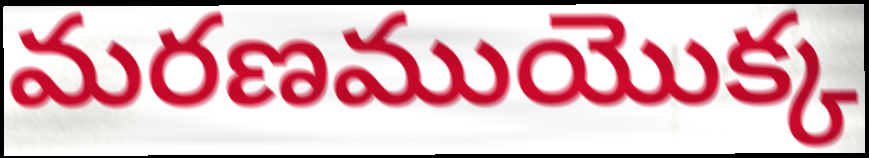
మరణముయొక్క